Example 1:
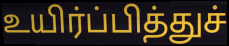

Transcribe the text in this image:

உயிர்ப்பித்துச்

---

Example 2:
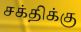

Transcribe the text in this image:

சக்திக்கு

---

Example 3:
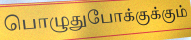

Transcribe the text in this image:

பொழுதுபோக்குக்கும்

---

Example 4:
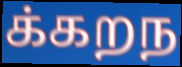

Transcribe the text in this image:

க்கறந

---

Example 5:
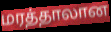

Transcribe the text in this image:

மரத்தாலான